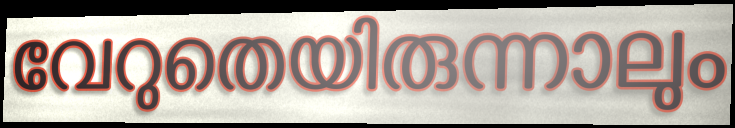
വേറുതെയിരുന്നാലും